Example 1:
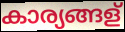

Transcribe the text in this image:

കാര്യങ്ങള്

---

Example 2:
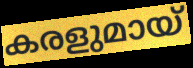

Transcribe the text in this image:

കരളുമായ്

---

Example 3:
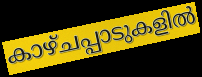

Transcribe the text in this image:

കാഴ്ചപ്പാടുകളിൽ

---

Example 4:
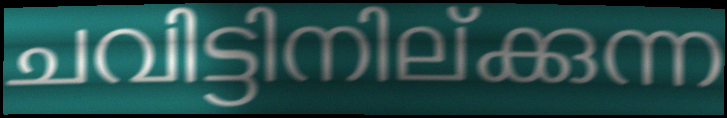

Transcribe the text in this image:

ചവിട്ടിനില്ക്കുന്ന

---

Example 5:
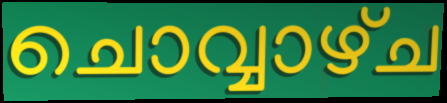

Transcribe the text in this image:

ചൊവ്വാഴ്‌ച